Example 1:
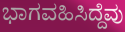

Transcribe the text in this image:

ಭಾಗವಹಿಸಿದ್ದೆವು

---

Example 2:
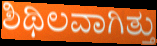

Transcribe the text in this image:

ಶಿಥಿಲವಾಗಿತ್ತು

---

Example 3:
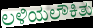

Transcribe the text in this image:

ಲಳಿಯಲೌಕಿತು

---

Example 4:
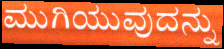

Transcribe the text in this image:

ಮುಗಿಯುವುದನ್ನು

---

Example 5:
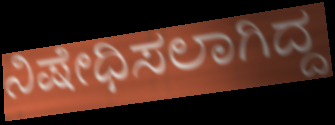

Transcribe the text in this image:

ನಿಷೇಧಿಸಲಾಗಿದ್ದ